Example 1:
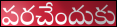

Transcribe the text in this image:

పరచేందుకు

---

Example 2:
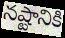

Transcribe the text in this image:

నష్టానికి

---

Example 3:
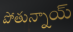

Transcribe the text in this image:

పోతున్నాయ్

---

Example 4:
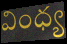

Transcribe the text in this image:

వింధ్య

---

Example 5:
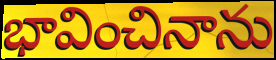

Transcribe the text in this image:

భావించినాను